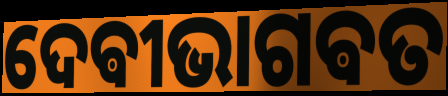
ଦେଵୀଭାଗଵତ